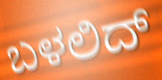
ಬಳಲಿದ್